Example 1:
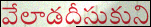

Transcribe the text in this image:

వేలాడదీసుకుని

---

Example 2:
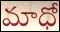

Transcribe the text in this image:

మాధో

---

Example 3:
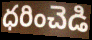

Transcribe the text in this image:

ధరించెడి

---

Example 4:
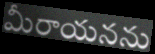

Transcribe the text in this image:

మీరాయనను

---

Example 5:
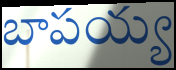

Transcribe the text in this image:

బాపయ్య